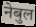
नेबुल